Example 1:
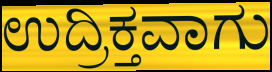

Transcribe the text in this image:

ಉದ್ರಿಕ್ತವಾಗು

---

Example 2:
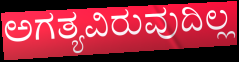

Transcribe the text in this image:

ಅಗತ್ಯವಿರುವುದಿಲ್ಲ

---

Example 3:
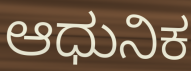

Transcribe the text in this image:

ಆಧುನಿಕ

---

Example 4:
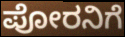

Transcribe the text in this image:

ಪೋರನಿಗೆ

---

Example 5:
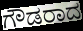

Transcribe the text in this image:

ಗೌಡರಾದ